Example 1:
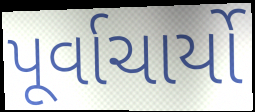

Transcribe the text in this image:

પૂર્વાચાર્યો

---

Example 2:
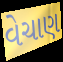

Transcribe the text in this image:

વેચાણ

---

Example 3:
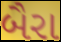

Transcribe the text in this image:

બૈરા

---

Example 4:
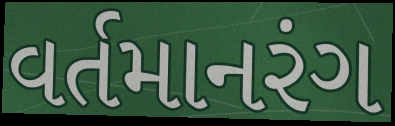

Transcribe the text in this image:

વર્તમાનરંગ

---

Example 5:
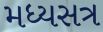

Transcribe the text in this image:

મધ્યસત્ર